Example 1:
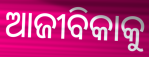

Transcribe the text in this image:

ଆଜୀବିକାକୁ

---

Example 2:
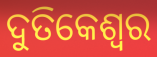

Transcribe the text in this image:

ଦୁତିକେଶ୍ୱର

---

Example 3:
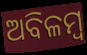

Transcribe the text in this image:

ଅବିଳମ୍ବ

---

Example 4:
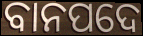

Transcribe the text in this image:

ବାନପଦେ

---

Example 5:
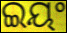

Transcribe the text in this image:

ଇୟଂ